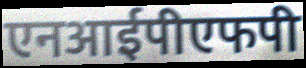
एनआईपीएफपी